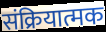
संक्रियात्मक